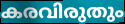
കരവിരുതും